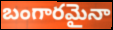
బంగారమైనా